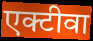
एक्टीवा